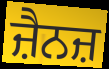
ਜ਼ੈਨਜ਼